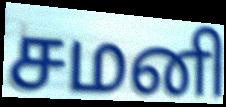
சமனி